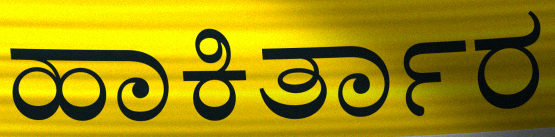
ಹಾಕಿರ್ತಾರ